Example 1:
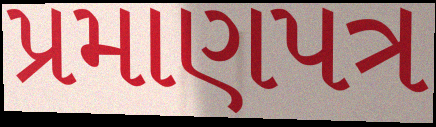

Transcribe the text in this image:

પ્રમાણપત્ર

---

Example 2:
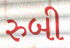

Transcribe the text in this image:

રુબી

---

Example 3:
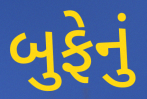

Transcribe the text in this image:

બુફેનું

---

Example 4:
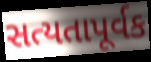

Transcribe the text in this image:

સત્યતાપૂર્વક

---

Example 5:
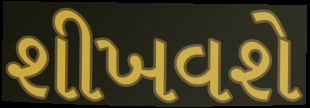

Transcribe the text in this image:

શીખવશે